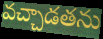
వచ్చాడతను